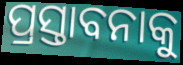
ପ୍ରସ୍ତାବନାକୁ